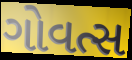
ગોવત્સ